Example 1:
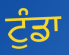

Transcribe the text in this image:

ਟੁੰਡਾ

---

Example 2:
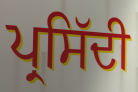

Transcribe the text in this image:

ਪ੍ਰਸਿੱਦੀ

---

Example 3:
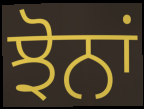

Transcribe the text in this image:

ਝੋਨਾਂ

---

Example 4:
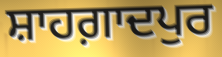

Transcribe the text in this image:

ਸ਼ਾਹਗ਼ਾਦਪੁਰ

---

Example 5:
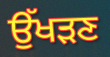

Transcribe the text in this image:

ਉੱਖੜਣ